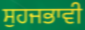
ਸੁਹਜਭਾਵੀ